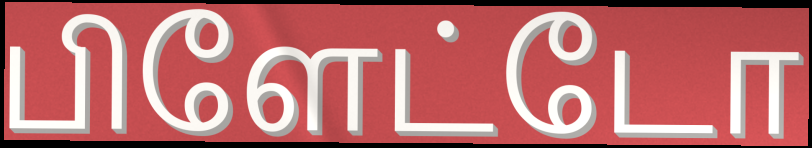
பிளேட்டோ